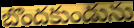
బొందకుండును